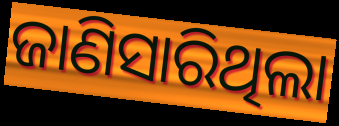
ଜାଣିସାରିଥିଲା